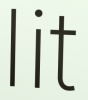
Iit